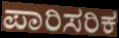
ಪಾರಿಸರಿಕ